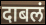
दाबलं